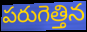
పరుగెత్తిన